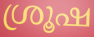
ശ്രൂഷ